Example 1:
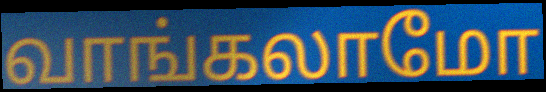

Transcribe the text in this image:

வாங்கலாமோ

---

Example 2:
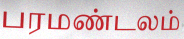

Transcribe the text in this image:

பரமண்டலம்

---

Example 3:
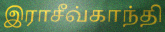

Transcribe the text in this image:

இராசீவ்காந்தி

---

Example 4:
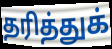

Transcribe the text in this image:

தரித்துக்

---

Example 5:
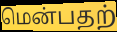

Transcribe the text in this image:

மென்பதற்